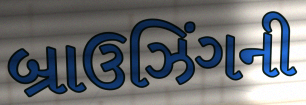
બ્રાઉઝિંગની